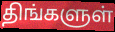
திங்களுள்